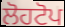
ਲੋਹਟੋਪ